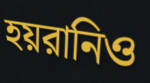
হয়রানিও